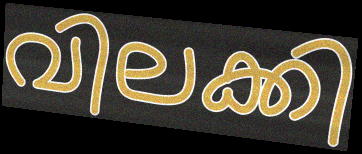
വിലക്കി